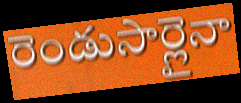
రెండుసార్లైనా